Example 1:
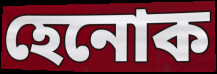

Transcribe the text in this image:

হেনোক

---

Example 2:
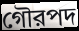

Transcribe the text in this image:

গৌরপদ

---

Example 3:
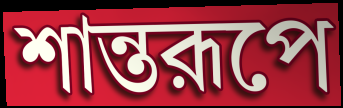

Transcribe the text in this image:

শান্তরূপে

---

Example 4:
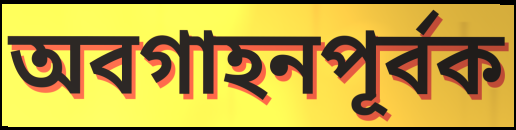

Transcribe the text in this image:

অবগাহনপূর্বক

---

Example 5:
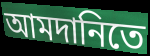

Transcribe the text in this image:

আমদানিতে